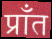
प्राँत